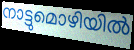
നാട്ടുമൊഴിയിൽ